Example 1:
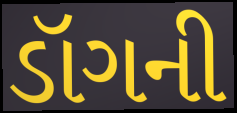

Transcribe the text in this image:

ડૉગની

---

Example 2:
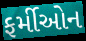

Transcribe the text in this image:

ફર્મીઓન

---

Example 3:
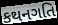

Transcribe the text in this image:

કથનગતિ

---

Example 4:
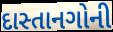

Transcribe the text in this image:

દાસ્તાનગોની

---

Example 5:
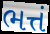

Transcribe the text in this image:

ભત્તં